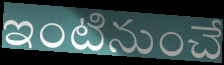
ఇంటినుంచే